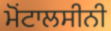
ਮੋਂਟਾਲਸੀਨੀ